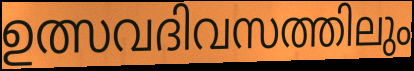
ഉത്സവദിവസത്തിലും